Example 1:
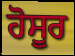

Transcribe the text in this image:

ਹੋਸੂਰ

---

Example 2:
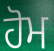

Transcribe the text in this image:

ਹੋਮ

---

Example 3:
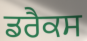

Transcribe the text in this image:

ਡਰੈਕਸ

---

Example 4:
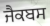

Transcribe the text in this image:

ਜੈਕਬਸ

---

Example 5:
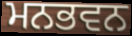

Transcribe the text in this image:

ਮਨਭਵਨ